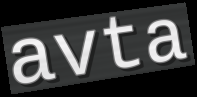
avta